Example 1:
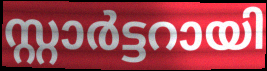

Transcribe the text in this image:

സ്റ്റാർട്ടറായി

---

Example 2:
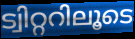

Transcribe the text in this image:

ട്വിറ്ററിലൂടെ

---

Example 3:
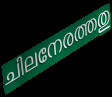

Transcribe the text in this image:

ചിലനേരത്തതു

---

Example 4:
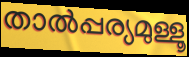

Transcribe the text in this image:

താൽപ്പര്യമുള്ളൂ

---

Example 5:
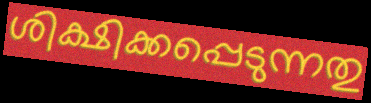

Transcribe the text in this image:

ശിക്ഷിക്കപ്പെടുന്നതു